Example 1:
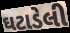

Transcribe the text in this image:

ઘટાડેલી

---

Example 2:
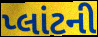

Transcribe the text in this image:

પ્લાંટની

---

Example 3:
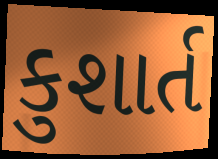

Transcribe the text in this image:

કુશાર્ત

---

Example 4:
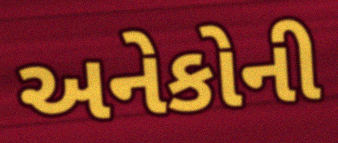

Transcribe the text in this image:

અનેકોની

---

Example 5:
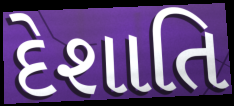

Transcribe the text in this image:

દેશાતિ